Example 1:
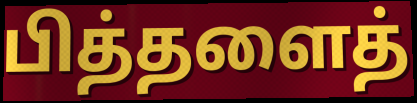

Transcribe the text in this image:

பித்தளைத்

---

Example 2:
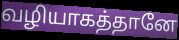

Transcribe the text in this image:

வழியாகத்தானே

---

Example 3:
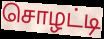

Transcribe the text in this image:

சொழட்டி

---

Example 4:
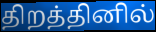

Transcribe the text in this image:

திறத்தினில்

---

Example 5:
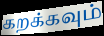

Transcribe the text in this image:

கறக்கவும்